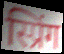
स्प्रिंग